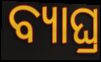
ବ୍ୟାଘ୍ର